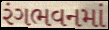
રંગભવનમાં